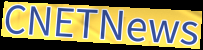
CNETNews